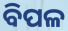
ବିପଳ